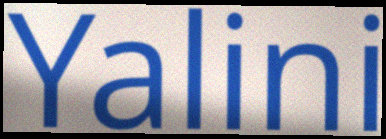
Yalini